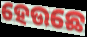
ହେଉଛେ